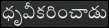
ధృవీకరించాడు